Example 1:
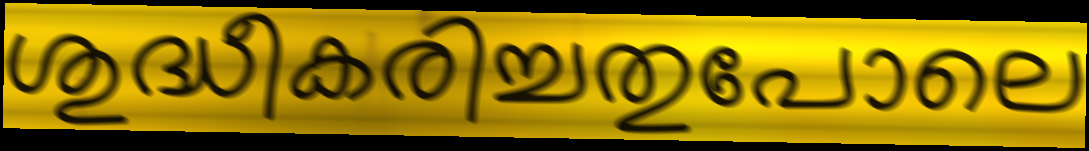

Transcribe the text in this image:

ശുദ്ധീകരിച്ചതുപോലെ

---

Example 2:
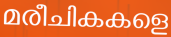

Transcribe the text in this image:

മരീചികകളെ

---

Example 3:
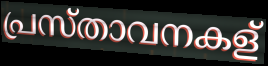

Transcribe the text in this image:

പ്രസ്താവനകള്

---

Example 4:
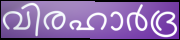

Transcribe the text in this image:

വിരഹാർദ്ര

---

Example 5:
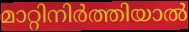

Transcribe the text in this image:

മാറ്റിനിർത്തിയാൽ